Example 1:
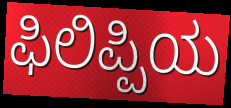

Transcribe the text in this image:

ಫಿಲಿಪ್ಪಿಯ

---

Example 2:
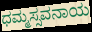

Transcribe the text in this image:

ಧಮ್ಮಸ್ಸವನಾಯ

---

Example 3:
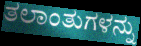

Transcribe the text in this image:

ತಲಾಂತುಗಳನ್ನು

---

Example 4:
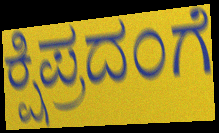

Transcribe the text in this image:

ಕ್ಷಿಪ್ರದಂಗೆ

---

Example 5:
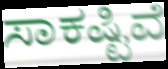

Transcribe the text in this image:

ಸಾಕಷ್ಟಿವೆ